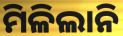
ମିଳିଲାନି